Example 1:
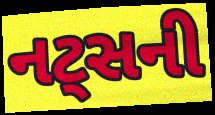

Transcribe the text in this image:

નટ્સની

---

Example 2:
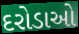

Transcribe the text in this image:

દરોડાઓ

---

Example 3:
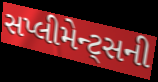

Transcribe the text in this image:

સપ્લીમેન્ટ્સની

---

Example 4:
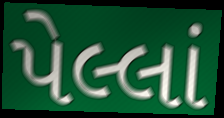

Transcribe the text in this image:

પેલ્લાં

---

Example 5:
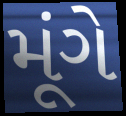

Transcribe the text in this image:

મૂંગે